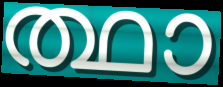
ത്ഥാ